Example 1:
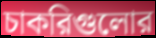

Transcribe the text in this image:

চাকরিগুলোর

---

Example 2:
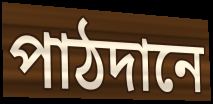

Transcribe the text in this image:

পাঠদানে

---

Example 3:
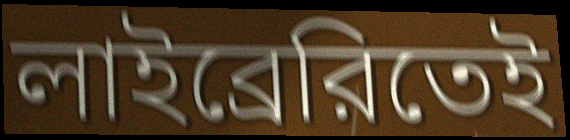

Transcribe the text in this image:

লাইব্রেরিতেই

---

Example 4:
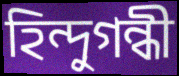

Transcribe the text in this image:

হিন্দুগন্ধী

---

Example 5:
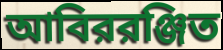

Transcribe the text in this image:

আবিররঞ্জিত